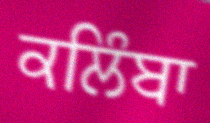
ਕਲਿੰਬਾ